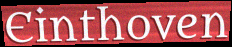
Einthoven